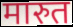
मारुत